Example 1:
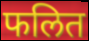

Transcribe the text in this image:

फलित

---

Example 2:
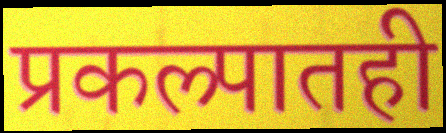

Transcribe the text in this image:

प्रकल्पातही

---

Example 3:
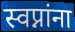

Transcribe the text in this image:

स्वप्नांना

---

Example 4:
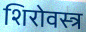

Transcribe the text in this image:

शिरोवस्त्र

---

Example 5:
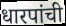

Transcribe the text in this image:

धारपांची